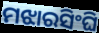
ମଝାରସିଂଘି